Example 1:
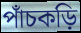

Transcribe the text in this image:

পাঁচকড়ি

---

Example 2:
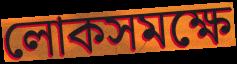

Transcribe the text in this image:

লোকসমক্ষে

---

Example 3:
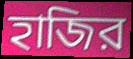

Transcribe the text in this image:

হাজির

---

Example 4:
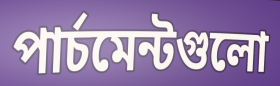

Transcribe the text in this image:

পার্চমেন্টগুলো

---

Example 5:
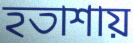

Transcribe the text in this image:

হতাশায়